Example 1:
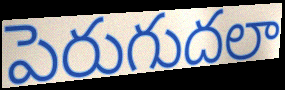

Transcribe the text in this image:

పెరుగుదలా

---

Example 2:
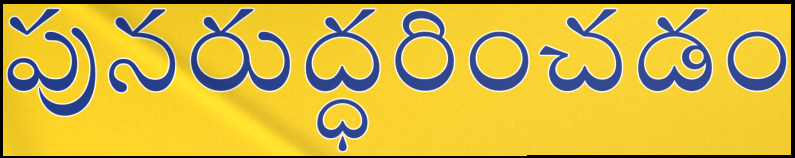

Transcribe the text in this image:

పునరుద్ధరించడం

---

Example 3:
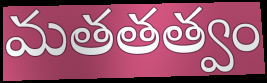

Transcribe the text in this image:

మతతత్వం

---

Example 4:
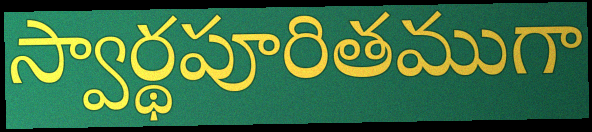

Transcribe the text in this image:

స్వార్థపూరితముగా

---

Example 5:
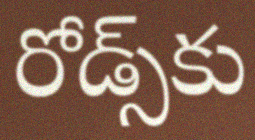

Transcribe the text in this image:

రోడ్స్‌కు